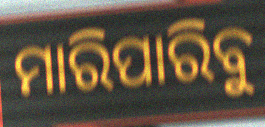
ମାରିପାରିବୁ